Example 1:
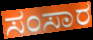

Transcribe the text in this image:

ಸಂಸಾರ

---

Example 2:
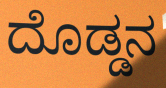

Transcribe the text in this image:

ದೊಡ್ಡನ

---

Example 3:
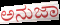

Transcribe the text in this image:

ಅನುಜಾ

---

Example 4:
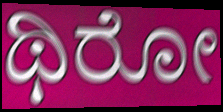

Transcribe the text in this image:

ಥಿರೋ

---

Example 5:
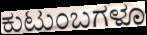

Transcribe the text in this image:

ಕುಟುಂಬಗಳೂ